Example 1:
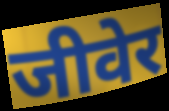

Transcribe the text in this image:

जीवेर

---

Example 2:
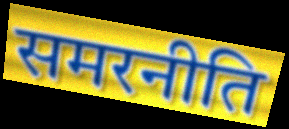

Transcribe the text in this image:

समरनीति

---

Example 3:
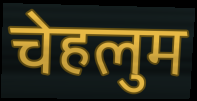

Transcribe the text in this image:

चेहलुम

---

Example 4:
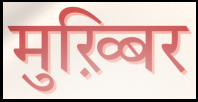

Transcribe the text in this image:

मुख़्बिर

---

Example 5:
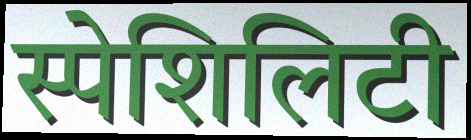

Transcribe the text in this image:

स्पेशिलिटी